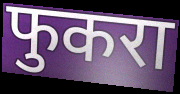
फुकरा